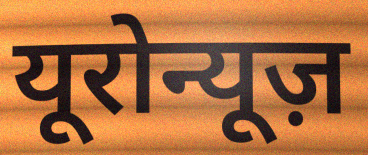
यूरोन्यूज़